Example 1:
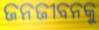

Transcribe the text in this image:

ଜନଜୀବନକୁ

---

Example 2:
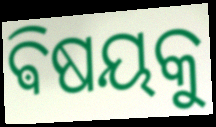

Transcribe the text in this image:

ଵିଷୟକୁ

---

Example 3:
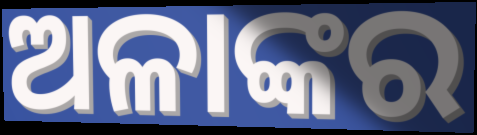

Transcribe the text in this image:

ଅଳାଙ୍କର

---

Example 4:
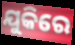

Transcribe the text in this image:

ଯୁକିରେ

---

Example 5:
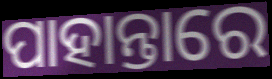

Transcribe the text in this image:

ପାହାନ୍ତାରେ